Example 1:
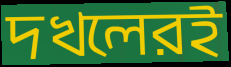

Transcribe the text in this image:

দখলেরই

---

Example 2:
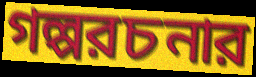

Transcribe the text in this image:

গল্পরচনার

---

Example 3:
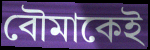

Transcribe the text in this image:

বৌমাকেই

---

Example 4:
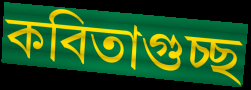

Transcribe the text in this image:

কবিতাগুচ্ছ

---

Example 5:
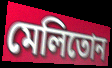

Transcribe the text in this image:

মেলিতোন